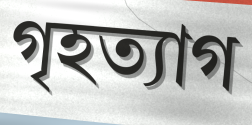
গৃহত্যাগ